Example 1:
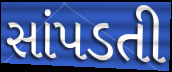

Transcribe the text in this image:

સાંપડતી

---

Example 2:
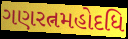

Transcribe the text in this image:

ગણરત્નમહોદધિ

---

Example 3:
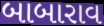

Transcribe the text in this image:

બાબારાવ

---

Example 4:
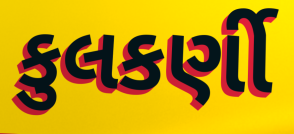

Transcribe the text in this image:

કુલકર્ણી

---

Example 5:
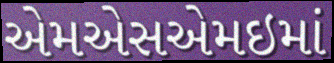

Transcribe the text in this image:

એમએસએમઇમાં